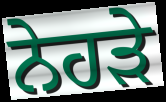
ਨੇਹੜੇ